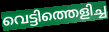
വെട്ടിത്തെളിച്ച